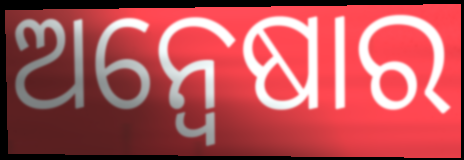
ଅନ୍ବେଷାର